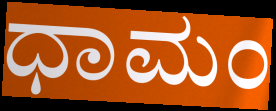
ಧಾಮಂ